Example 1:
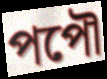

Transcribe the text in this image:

পপৌ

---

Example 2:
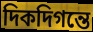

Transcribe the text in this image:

দিকদিগন্তে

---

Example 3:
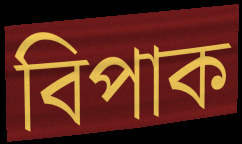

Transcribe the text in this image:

বিপাক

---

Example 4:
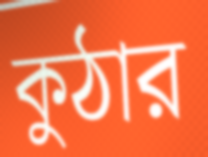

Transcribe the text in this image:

কুঠার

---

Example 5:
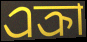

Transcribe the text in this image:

এক্রা